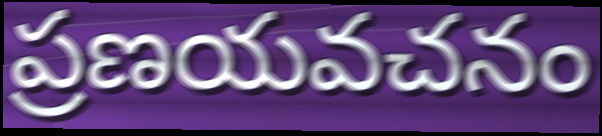
ప్రణయవచనం